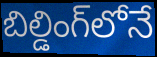
బిల్డింగ్‌లోనే